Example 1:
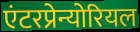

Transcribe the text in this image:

एंटरप्रेन्योरियल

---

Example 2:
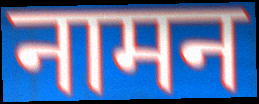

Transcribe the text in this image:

नामन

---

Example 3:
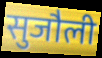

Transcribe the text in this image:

सुजौली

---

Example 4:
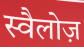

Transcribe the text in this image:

स्वैलोज़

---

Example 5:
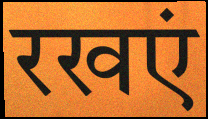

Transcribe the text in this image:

रखएं